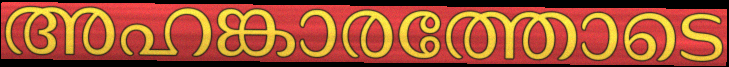
അഹങ്കാരത്തോടെ